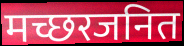
मच्छरजनित